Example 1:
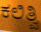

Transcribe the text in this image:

ಕಲಿತ್ವಿ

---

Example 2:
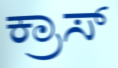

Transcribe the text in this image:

ಕ್ರಾಸ್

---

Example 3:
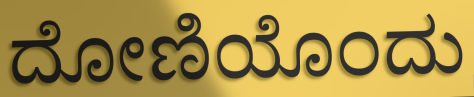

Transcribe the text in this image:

ದೋಣಿಯೊಂದು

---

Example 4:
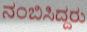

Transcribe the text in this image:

ನಂಬಿಸಿದ್ದರು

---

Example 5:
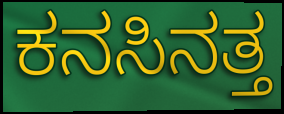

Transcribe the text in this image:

ಕನಸಿನತ್ತ